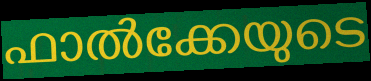
ഫാൽക്കേയുടെ